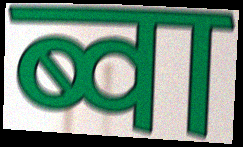
ब्वा